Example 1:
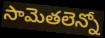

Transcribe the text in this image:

సామెతలెన్నో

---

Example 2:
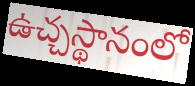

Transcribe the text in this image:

ఉచ్చస్థానంలో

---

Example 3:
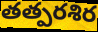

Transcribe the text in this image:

తత్పరశిర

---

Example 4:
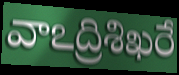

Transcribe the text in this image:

వాఽద్రిశిఖరే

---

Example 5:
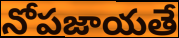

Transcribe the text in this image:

నోపజాయతే